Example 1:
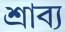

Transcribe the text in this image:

শ্রাব্য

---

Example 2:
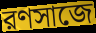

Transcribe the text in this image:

রণসাজে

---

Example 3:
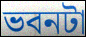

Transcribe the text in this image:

ভবনটা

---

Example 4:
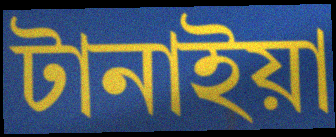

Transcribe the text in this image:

টানাইয়া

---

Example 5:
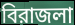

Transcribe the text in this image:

বিরাজলা